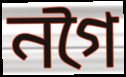
নগৈ